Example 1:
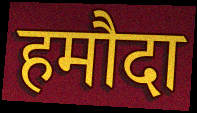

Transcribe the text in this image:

हमौदा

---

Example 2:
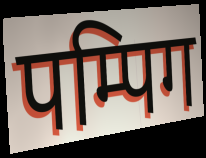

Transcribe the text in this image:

पम्पिग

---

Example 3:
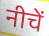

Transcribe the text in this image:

नीचें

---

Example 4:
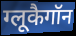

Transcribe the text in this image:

ग्लूकैगॉन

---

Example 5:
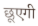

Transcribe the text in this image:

छूएगी